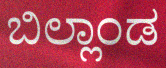
ಬಿಲ್ಲಾಂಡ